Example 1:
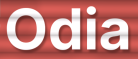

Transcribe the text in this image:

Odia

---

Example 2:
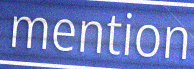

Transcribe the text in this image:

mention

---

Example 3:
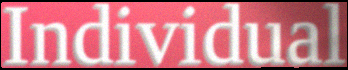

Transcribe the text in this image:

Individual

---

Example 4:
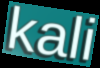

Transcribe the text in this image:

kali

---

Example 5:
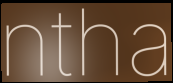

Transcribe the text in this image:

ntha